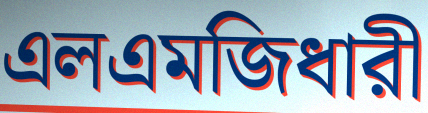
এলএমজিধারী